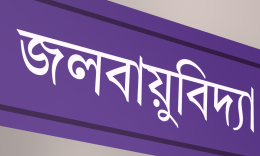
জলবায়ুবিদ্যা